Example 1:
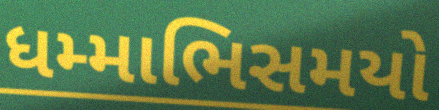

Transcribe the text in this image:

ધમ્માભિસમયો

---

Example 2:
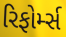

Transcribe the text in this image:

રિફોર્મ્સ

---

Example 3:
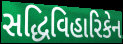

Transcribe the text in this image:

સદ્ધિવિહારિકેન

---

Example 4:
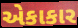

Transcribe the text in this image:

એકાકાર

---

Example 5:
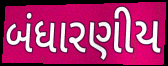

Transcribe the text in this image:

બંધારણીય